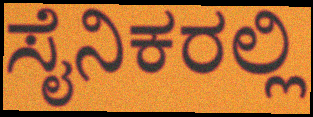
ಸೈನಿಕರಲ್ಲಿ